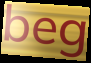
beg